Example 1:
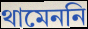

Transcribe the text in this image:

থামেননি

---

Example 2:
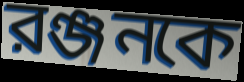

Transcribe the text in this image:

রঞ্জনকে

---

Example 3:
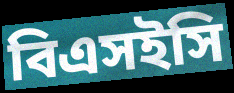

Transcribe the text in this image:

বিএসইসি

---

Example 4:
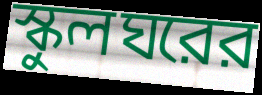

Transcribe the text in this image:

স্কুলঘরের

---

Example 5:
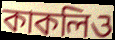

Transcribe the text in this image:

কাকলিও